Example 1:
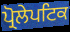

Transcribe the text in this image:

ਪ੍ਰੋਲੇਪਟਿਕ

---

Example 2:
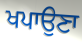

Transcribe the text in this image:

ਖਪਾਉਣਾ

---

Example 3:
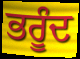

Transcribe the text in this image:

ਭਰੂੰਦ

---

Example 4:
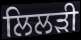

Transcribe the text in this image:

ਲਿਲੜੀ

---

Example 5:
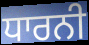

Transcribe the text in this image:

ਧਾਰਨੀ